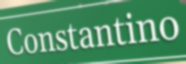
Constantino